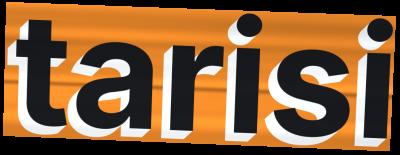
tarisi